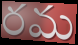
రమ